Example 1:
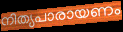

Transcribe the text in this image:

നിത്യപാരായണം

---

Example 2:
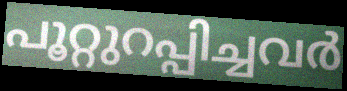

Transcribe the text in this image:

പൂറ്റുറപ്പിച്ചവർ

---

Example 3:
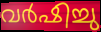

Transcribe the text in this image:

വർഷിച്ചു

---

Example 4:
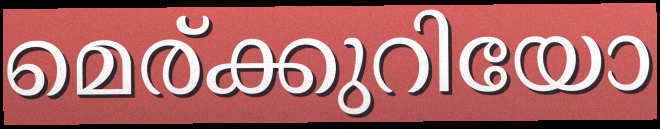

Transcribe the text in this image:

മെര്ക്കുറിയോ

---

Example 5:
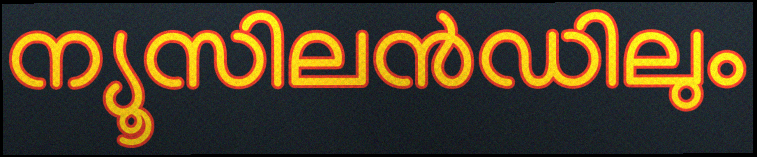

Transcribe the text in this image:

ന്യൂസിലൻഡിലും